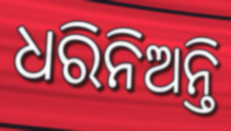
ଧରିନିଅନ୍ତି